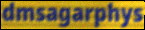
dmsagarphys